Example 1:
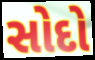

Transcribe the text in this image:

સોદો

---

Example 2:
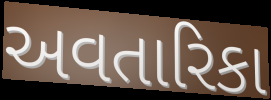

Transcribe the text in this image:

અવતારિકા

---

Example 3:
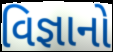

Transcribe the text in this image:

વિજ્ઞાનો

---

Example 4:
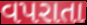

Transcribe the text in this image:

વપરાતા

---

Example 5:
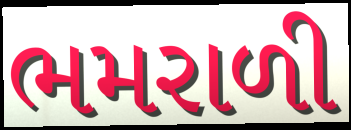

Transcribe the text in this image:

ભમરાળી